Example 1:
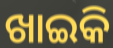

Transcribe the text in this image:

ଖାଇକି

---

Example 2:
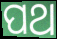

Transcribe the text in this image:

ପଥ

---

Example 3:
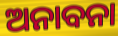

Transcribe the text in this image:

ଅନାବନା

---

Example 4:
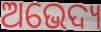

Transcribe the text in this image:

ଅଭେଦ୍ୟ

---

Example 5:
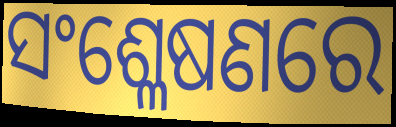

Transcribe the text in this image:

ସଂଶ୍ଳେଷଣରେ